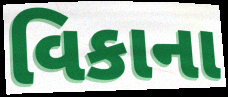
વિકાના